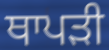
ਥਾਪੜੀ